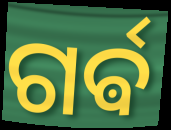
ଗର୍ଵ